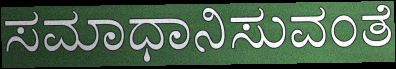
ಸಮಾಧಾನಿಸುವಂತೆ